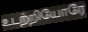
உடற்றியோரே